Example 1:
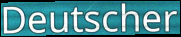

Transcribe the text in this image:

Deutscher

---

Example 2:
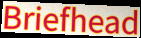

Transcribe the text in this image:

Briefhead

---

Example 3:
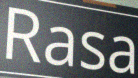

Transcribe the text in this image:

Rasa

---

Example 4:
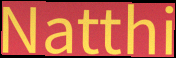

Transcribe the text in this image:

Natthi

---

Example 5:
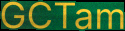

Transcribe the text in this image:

GCTam